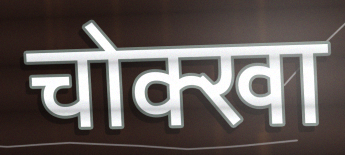
चोक्खा